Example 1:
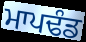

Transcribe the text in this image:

ਮਾਪਢੰਡ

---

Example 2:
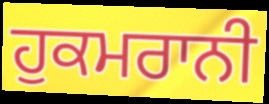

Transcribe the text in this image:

ਹੁਕਮਰਾਨੀ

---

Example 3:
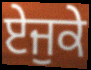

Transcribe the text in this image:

ਏਜੁਕੇ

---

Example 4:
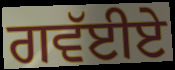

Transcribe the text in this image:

ਗਵੱਈਏ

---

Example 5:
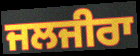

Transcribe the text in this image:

ਜਲਜੀਰਾ